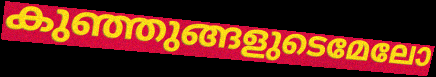
കുഞ്ഞുങ്ങളുടെമേലോ